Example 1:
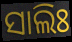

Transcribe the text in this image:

ସାଲିଃ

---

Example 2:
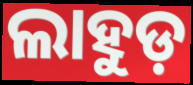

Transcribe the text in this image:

ଲାହୁଡ଼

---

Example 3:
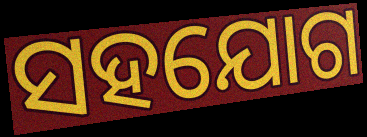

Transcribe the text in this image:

ସହଯୋଗ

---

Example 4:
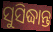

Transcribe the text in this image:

ସୁସିଦ୍ଧାନ୍ତ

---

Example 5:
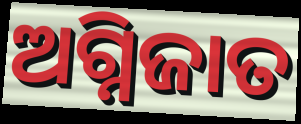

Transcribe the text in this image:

ଅଗ୍ନିଜାତ